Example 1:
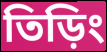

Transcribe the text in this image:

তিড়িং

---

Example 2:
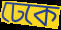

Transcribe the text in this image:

ঢেকে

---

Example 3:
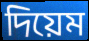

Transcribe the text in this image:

দিয়েম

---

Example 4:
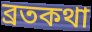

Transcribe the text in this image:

ব্রতকথা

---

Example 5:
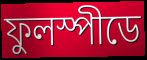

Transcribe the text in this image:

ফুলস্পীডে